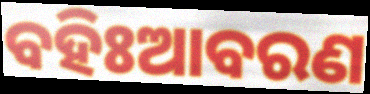
ବହିଃଆବରଣ